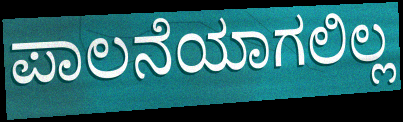
ಪಾಲನೆಯಾಗಲಿಲ್ಲ